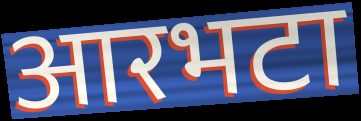
आरभटा